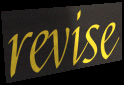
revise